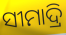
ସୀମାଦ୍ରି